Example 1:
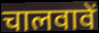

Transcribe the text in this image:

चालवावें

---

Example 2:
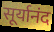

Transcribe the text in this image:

सूर्यानंद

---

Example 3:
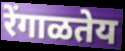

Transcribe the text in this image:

रेंगाळतेय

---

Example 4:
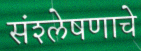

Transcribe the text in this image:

संश्लेषणाचे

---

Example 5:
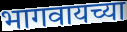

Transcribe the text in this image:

भागवायच्या